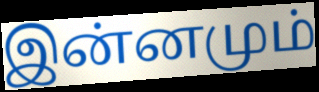
இன்னமும்